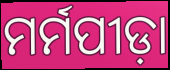
ମର୍ମପୀଡ଼ା